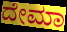
ದೇಮಾ